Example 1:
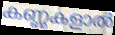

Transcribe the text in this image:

കണ്ണുകളാൽ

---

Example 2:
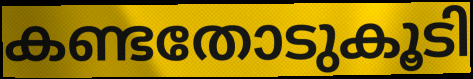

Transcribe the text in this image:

കണ്ടതോടുകൂടി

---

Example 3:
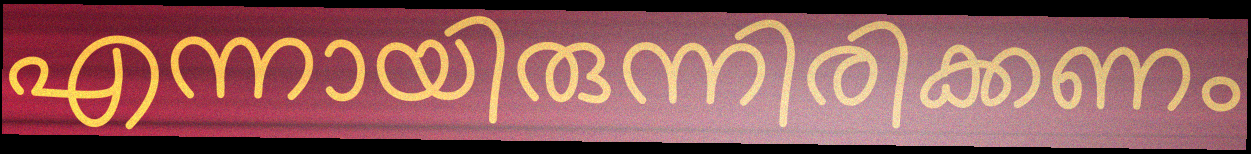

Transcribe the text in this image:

എന്നായിരുന്നിരിക്കണം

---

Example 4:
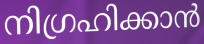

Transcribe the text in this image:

നിഗ്രഹിക്കാൻ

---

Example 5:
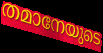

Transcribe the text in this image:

തമാനേയുടെ